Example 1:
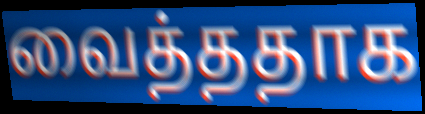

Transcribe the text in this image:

வைத்ததாக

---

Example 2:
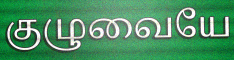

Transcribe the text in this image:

குழுவையே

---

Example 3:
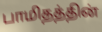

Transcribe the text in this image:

பாமிதத்தின்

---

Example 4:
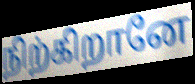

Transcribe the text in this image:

நிற்கிறானே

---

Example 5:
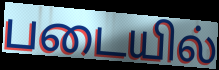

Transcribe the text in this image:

படையில்